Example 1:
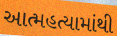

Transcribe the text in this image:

આત્મહત્યામાંથી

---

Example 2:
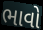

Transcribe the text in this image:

ભાવો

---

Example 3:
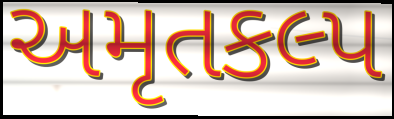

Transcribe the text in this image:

અમૃતકલ્પ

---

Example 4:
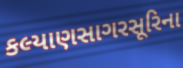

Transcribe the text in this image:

કલ્યાણસાગરસૂરિના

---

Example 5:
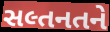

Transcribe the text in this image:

સલ્તનતને